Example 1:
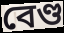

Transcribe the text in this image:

বেণ্ড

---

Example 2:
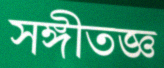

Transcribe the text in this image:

সঙ্গীতজ্ঞ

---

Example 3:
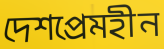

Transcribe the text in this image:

দেশপ্ৰেমহীন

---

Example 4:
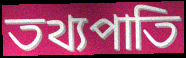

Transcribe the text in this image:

তথ্যপাতি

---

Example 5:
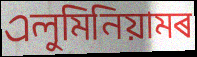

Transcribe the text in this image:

এলুমিনিয়ামৰ